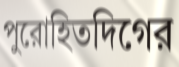
পুরোহিতদিগের